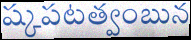
ష్కపటత్వంబున